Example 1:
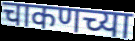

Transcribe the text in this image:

चाकणच्या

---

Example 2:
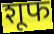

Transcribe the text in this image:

शूफ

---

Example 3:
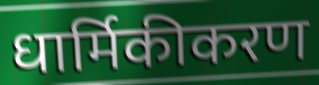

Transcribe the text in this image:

धार्मिकीकरण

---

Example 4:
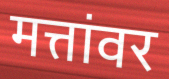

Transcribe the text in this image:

मत्तांवर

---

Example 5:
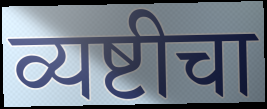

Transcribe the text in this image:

व्यष्टीचा